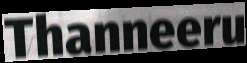
Thanneeru